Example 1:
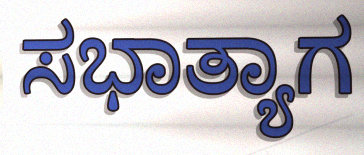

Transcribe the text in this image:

ಸಭಾತ್ಯಾಗ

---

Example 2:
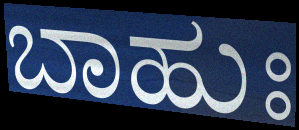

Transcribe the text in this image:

ಬಾಹುಃ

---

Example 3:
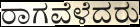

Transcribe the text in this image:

ರಾಗವೆಳೆದರು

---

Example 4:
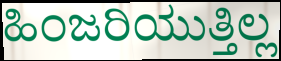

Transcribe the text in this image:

ಹಿಂಜರಿಯುತ್ತಿಲ್ಲ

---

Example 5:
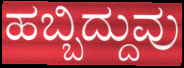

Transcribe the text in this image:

ಹಬ್ಬಿದ್ದುವು